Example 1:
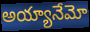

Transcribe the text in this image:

అయ్యానేమో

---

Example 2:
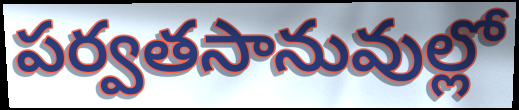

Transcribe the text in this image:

పర్వతసానువుల్లో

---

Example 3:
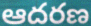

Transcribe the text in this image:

ఆదరణ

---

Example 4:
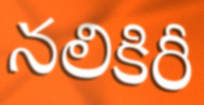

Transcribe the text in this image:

నలికిరీ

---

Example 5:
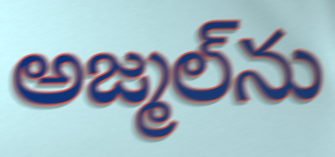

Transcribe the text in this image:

అజ్మల్‌ను